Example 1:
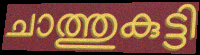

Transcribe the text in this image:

ചാത്തുകുട്ടി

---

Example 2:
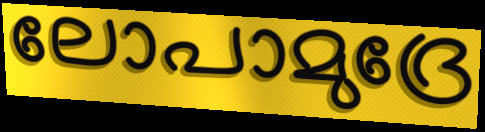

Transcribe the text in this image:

ലോപാമുദ്രേ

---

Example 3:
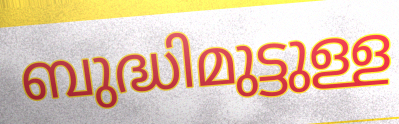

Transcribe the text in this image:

ബുദ്ധിമുട്ടുള്ള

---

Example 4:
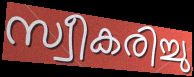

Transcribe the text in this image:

സ്വീകരിച്ചു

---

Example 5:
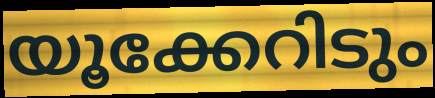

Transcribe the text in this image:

യൂക്കേറിടും